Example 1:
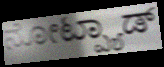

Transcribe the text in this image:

ನೋಟ್ಪ್ಯಾಡ್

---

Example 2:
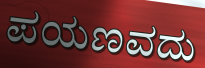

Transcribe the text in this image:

ಪಯಣವದು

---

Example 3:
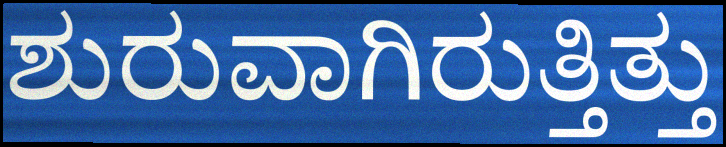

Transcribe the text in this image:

ಶುರುವಾಗಿರುತ್ತಿತ್ತು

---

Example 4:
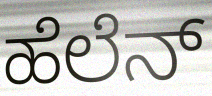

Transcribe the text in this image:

ಹೆಲೆನ್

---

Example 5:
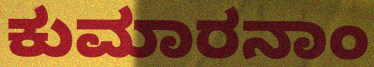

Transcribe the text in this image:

ಕುಮಾರನಾಂ